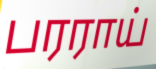
பரராய்